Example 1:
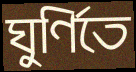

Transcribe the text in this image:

ঘুর্ণিতে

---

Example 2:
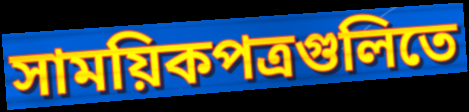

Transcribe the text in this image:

সাময়িকপত্রগুলিতে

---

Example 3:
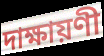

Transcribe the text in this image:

দাক্ষায়ণী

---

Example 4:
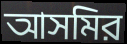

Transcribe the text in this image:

আসমির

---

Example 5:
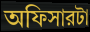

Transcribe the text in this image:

অফিসারটা